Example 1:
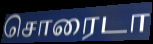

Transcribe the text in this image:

சொரைடா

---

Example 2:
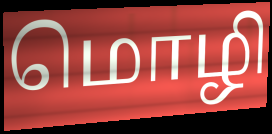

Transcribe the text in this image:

மொழி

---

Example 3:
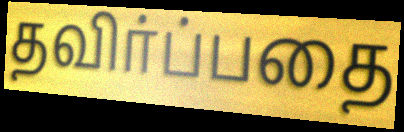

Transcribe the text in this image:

தவிர்ப்பதை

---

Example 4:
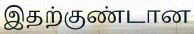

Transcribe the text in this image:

இதற்குண்டான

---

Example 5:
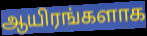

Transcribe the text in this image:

ஆயிரங்களாக